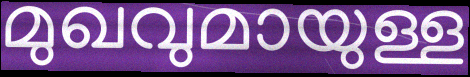
മുഖവുമായുള്ള